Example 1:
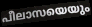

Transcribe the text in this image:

പീലാസയെയും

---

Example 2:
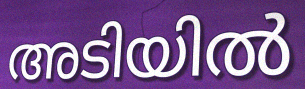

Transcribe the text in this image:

അടിയിൽ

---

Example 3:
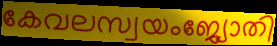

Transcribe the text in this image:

കേവലസ്വയംജ്യോതി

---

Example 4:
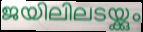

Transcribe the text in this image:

ജയിലിലടയ്ക്കും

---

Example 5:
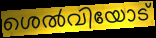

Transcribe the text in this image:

ശെൽവിയോട്